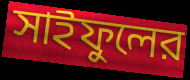
সাইফুলের